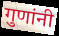
गुणांनी